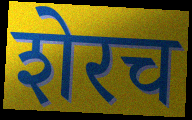
शेरच